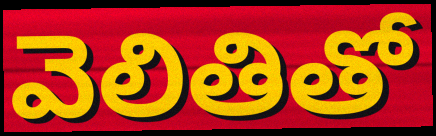
వెలితితో